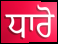
ਧਾਰੋ